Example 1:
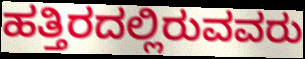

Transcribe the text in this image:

ಹತ್ತಿರದಲ್ಲಿರುವವರು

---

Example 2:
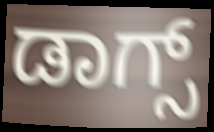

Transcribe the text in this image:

ಡಾಗ್ಸ್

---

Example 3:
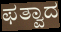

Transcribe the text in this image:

ಫತ್ವಾದ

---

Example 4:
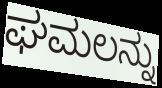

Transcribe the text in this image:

ಘಮಲನ್ನು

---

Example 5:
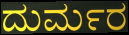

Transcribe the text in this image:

ದುರ್ಮರ